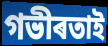
গভীৰতাই